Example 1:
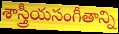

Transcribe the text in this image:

శాస్త్రీయసంగీతాన్ని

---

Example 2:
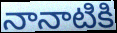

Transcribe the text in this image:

నానాటికి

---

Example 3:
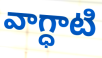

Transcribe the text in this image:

వాగ్ధాటి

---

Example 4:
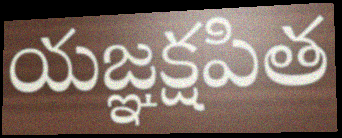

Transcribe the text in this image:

యజ్ఞక్షపిత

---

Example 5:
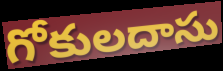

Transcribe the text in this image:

గోకులదాసు